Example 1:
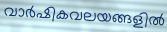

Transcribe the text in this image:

വാർഷികവലയങ്ങളിൽ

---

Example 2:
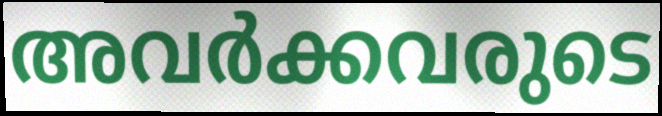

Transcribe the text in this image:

അവർക്കവരുടെ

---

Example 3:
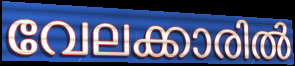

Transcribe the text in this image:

വേലക്കാരിൽ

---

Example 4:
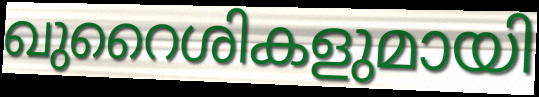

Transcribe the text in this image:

ഖുറൈശികളുമായി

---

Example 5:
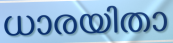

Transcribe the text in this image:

ധാരയിതാ